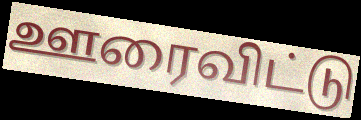
ஊரைவிட்டு